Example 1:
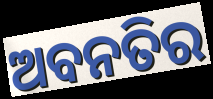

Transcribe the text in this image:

ଅବନତିର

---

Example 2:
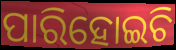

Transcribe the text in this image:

ପାରିହୋଇଚି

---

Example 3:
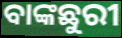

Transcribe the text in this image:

ବାଙ୍କଛୁରୀ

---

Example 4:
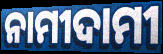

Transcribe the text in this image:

ନାମୀଦାମୀ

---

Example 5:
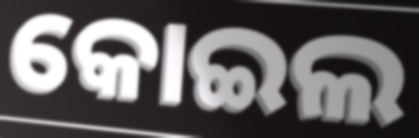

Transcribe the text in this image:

କୋଇଲ